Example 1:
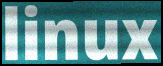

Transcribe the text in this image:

linux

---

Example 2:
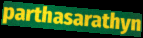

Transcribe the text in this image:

parthasarathyn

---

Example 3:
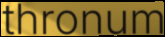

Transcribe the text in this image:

thronum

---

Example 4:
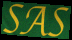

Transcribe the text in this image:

SAS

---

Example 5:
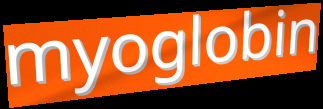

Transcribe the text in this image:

myoglobin